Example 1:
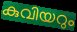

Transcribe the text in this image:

കുവിയറും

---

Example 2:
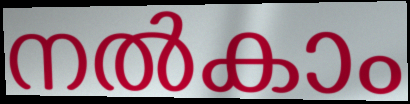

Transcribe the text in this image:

നൽകാം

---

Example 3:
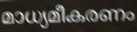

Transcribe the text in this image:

മാധ്യമീകരണം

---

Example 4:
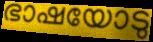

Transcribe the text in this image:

ഭാഷയോടു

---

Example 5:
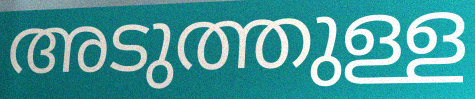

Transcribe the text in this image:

അടുത്തുള്ള